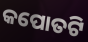
କପୋତଟି